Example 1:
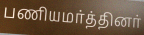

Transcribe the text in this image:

பணியமர்த்தினர்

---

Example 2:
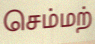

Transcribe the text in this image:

செம்மற்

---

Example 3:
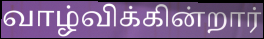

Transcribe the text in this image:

வாழ்விக்கின்றார்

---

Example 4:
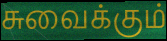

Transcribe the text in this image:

சுவைக்கும்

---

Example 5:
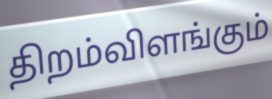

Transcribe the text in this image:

திறம்விளங்கும்